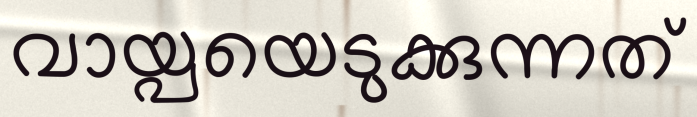
വായ്പയെടുക്കുന്നത്